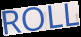
ROLL